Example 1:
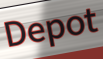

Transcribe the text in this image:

Depot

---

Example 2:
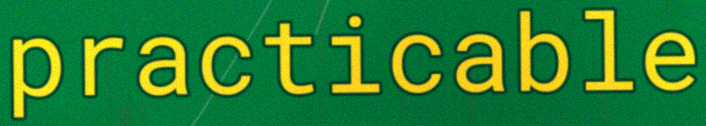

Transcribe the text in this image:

practicable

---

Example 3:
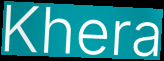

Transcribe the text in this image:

Khera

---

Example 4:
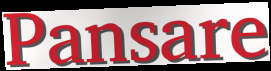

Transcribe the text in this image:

Pansare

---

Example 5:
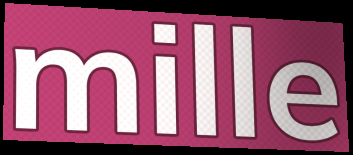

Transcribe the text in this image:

mille